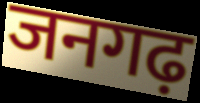
जनगढ़